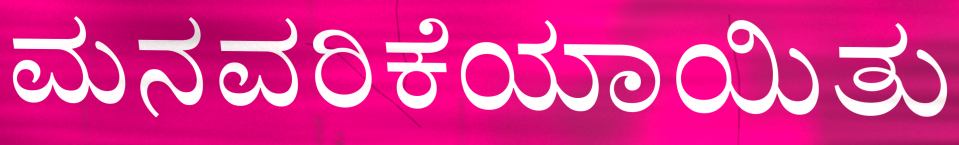
ಮನವರಿಕೆಯಾಯಿತು